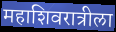
महाशिवरात्रीला